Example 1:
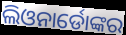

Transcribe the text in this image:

ଲିଓନାର୍ଡୋଙ୍କର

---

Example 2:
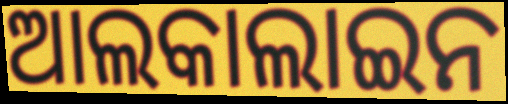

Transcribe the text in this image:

ଆଲକାଲାଇନ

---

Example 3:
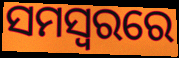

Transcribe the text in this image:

ସମସ୍ବରରେ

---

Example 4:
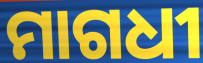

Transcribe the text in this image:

ମାଗଧୀ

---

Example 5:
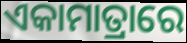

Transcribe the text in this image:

ଏକାମାତ୍ରାରେ